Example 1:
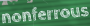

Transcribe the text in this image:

nonferrous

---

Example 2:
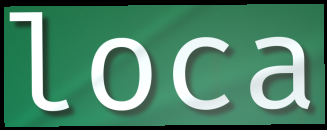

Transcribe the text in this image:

loca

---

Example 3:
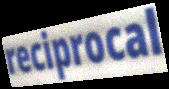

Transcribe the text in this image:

reciprocal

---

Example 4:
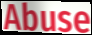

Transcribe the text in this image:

Abuse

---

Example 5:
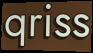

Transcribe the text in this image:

qriss